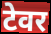
टेवर